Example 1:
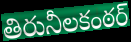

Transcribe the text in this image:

తిరునీలకంఠర్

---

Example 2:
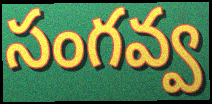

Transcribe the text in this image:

సంగవ్వ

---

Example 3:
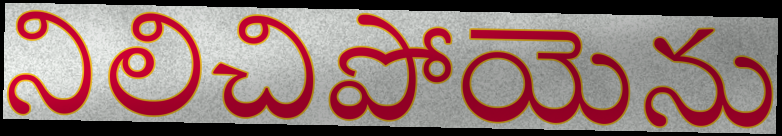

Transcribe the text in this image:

నిలిచిపోయెను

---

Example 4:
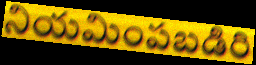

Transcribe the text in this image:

నియమింపబడిరి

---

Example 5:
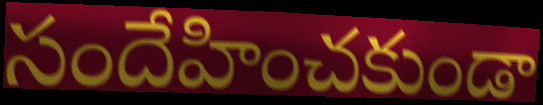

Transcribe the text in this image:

సందేహించకుండా